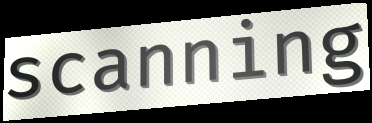
scanning